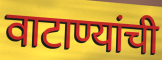
वाटाण्यांची